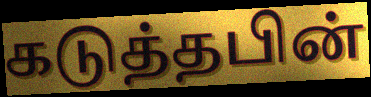
கடுத்தபின்